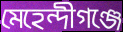
মেহেন্দীগঞ্জে